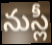
నుస్లీ